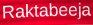
Raktabeeja